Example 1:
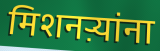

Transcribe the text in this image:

मिशनऱ्‍यांना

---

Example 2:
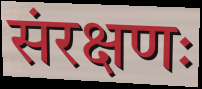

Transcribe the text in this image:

संरक्षणः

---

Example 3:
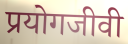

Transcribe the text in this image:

प्रयोगजीवी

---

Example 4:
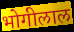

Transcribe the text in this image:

भोगीलाल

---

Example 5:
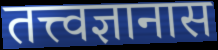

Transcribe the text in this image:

तत्त्वज्ञानास